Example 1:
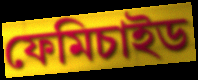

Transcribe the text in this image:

ফেমিচাইড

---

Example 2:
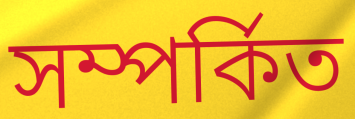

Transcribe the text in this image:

সম্পৰ্কিত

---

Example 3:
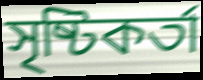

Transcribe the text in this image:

সৃষ্টিকৰ্তা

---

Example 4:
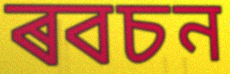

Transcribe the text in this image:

ৰবচন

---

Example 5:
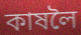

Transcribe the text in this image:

কাষলৈ